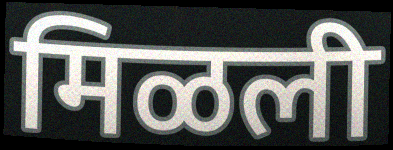
मिळली